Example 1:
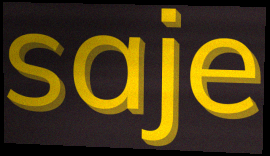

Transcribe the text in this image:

saje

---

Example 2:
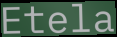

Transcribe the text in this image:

Etela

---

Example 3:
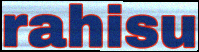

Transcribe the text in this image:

rahisu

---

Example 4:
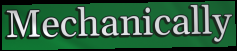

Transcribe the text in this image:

Mechanically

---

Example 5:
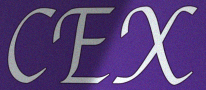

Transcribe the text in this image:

CEX